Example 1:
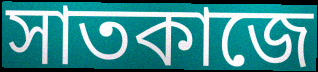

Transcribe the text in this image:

সাতকাজে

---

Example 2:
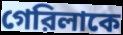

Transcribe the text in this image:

গেরিলাকে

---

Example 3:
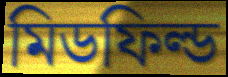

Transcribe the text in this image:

মিডফিল্ড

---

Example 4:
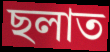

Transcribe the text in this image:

ছলাত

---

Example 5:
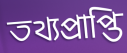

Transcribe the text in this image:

তথ্যপ্রাপ্তি